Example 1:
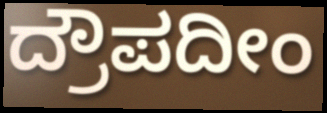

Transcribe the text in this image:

ದ್ರೌಪದೀಂ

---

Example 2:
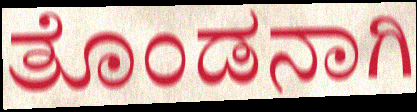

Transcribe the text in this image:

ತೊಂಡನಾಗಿ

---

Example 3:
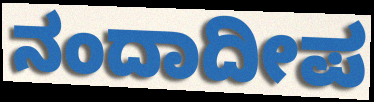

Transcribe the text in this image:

ನಂದಾದೀಪ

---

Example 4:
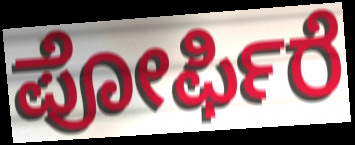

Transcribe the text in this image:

ಪೋರ್ಫಿರೆ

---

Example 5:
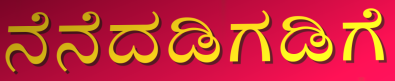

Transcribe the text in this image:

ನೆನೆದಡಿಗಡಿಗೆ